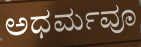
ಅಧರ್ಮವೂ